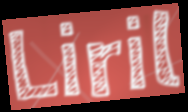
Liril